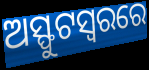
ଅସ୍ଫୁଟସ୍ୱରରେ